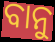
ବାନୁ